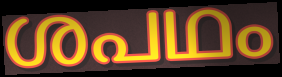
ശപഥം